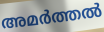
അമർത്തൽ